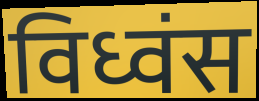
विध्वंस